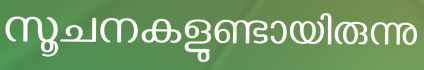
സൂചനകളുണ്ടായിരുന്നു